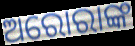
ଅରୋରାଙ୍କ